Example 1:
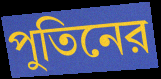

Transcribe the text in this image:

পুতিনের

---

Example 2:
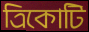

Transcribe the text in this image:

ত্রিকোটি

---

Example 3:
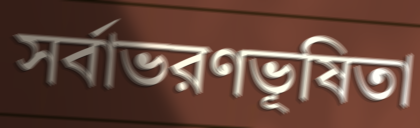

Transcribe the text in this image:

সর্বাভরণভূষিতা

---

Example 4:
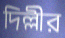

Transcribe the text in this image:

দিল্লীর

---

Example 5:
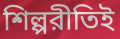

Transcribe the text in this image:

শিল্পরীতিই